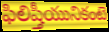
ఫిలిష్తీయునికంటె